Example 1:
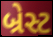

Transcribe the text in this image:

બ્રેસ્ટ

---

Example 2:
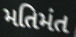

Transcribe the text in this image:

મતિમંત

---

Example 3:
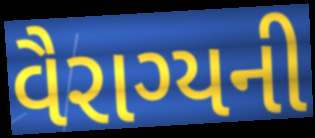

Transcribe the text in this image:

વૈરાગ્યની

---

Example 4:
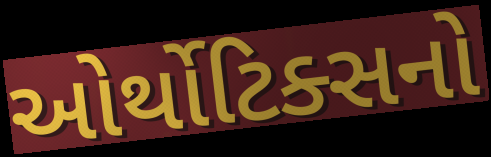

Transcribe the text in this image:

ઓર્થોટિક્સનો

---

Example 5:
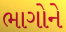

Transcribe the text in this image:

ભાગોને